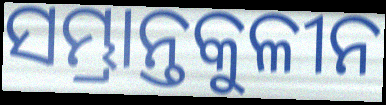
ସମ୍ଭ୍ରାନ୍ତକୁଳୀନ